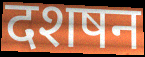
दशषन